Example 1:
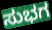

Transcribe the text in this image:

ಸುಭಗ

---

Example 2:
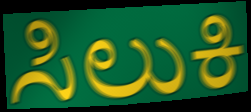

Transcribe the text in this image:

ಸಿಲುಕಿ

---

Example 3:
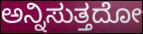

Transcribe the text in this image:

ಅನ್ನಿಸುತ್ತದೋ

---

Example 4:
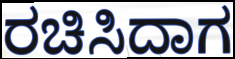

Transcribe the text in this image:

ರಚಿಸಿದಾಗ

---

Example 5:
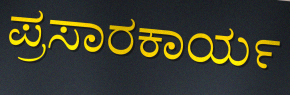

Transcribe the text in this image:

ಪ್ರಸಾರಕಾರ್ಯ